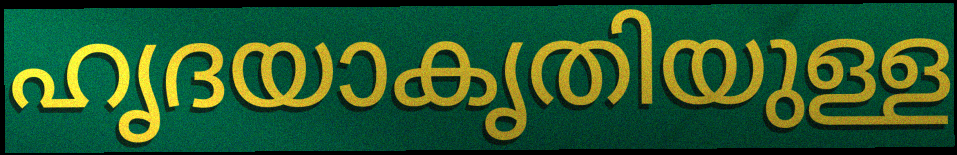
ഹൃദയാകൃതിയുള്ള